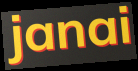
janai